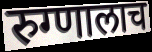
रुग्णालाच